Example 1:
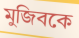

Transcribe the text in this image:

মুজিবকে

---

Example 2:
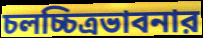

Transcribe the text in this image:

চলচ্চিত্রভাবনার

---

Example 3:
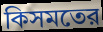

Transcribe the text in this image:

কিসমতের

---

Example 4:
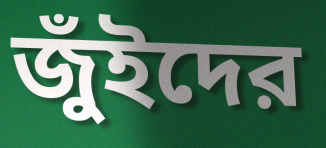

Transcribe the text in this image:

জুঁইদের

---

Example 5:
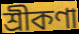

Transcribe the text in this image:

শ্রীকণা